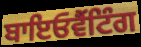
ਬਾਇਓਵੈਂਟਿੰਗ